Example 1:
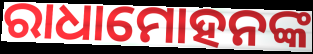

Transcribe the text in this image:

ରାଧାମୋହନଙ୍କ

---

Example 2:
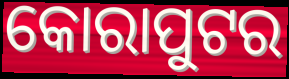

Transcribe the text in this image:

କୋରାପୁଟର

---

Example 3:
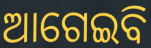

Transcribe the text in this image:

ଆଗେଇବି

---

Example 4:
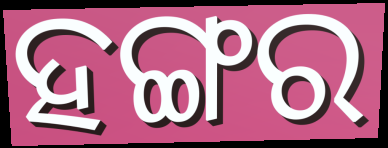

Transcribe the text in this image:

ହଙ୍ଗର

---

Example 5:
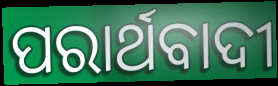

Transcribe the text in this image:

ପରାର୍ଥବାଦୀ